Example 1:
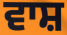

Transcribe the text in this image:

ਵਾਸ਼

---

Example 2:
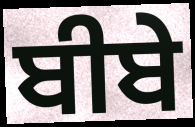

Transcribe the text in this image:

ਬੀਬੇ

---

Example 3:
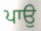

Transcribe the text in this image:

ਪਾਉ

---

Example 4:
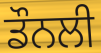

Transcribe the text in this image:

ਡੌਨਲੀ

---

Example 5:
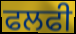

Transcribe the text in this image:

ਫਲਫੀ